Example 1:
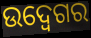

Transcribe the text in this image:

ଉଦ୍ବେଗର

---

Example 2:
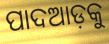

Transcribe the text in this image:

ପାଦଆଡ଼କୁ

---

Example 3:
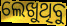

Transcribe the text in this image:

ଲେଖୁଥିବୁ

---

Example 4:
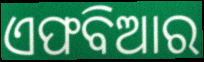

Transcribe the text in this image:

ଏଫବିଆର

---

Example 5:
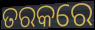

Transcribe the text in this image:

ତରକରେ